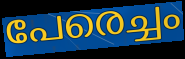
പേരെച്ചം